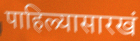
पाहिल्यासारखं